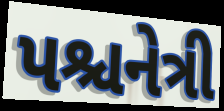
પશ્ચનેત્રી